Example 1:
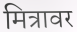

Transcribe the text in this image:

मित्रावर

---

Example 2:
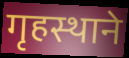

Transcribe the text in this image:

गृहस्थाने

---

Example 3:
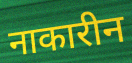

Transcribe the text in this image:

नाकारीन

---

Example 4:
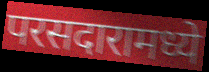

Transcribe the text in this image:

परसदारामध्ये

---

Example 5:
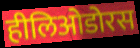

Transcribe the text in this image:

हीलिओडोरस